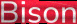
Bison